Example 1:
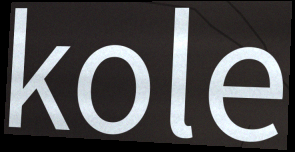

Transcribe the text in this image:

kole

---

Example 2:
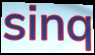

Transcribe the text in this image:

sinq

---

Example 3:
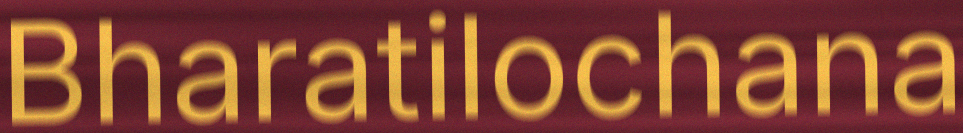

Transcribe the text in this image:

Bharatilochana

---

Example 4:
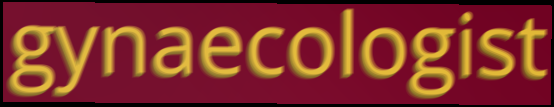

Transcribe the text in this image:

gynaecologist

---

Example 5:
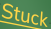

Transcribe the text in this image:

Stuck